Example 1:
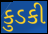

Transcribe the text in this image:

કુડકી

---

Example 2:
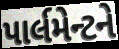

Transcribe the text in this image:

પાર્લમેન્ટને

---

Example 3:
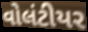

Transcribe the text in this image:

વોલંટીયર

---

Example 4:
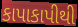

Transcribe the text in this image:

કાપાકાપીથી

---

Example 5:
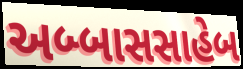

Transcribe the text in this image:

અબ્બાસસાહેબ